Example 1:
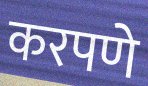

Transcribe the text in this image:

करपणे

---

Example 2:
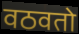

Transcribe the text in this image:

वठवतो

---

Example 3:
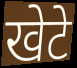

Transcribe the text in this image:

खेटे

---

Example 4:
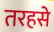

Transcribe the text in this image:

तरहसे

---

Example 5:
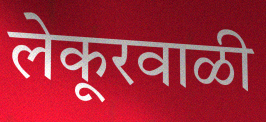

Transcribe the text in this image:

लेकूरवाळी